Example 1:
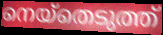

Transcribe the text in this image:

നെയ്തെടുത്ത്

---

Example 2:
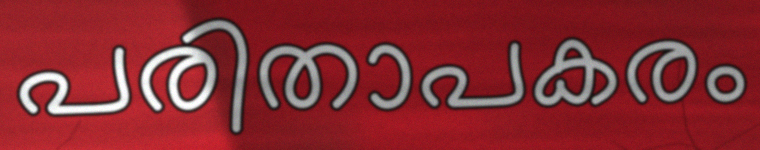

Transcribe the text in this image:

പരിതാപകരം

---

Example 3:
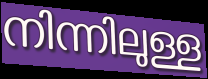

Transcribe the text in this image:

നിന്നിലുള്ള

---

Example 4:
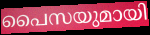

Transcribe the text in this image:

പൈസയുമായി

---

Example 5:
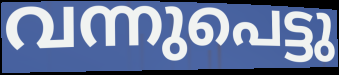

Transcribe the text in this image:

വന്നുപെട്ടു